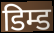
डिम्ड